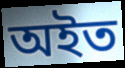
অইত